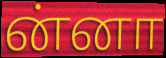
ன்னா